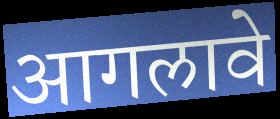
आगलावे